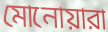
মোনোয়ারা